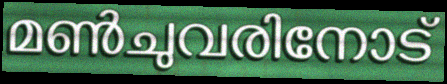
മൺചുവരിനോട്